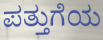
ಪತ್ತುಗೆಯ